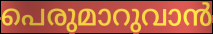
പെരുമാറുവാൻ